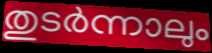
തുടർന്നാലും